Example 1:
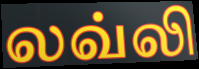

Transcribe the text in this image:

லவ்லி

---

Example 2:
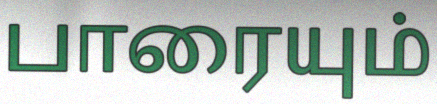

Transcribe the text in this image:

பாரையும்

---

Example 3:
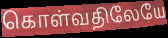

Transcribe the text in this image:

கொள்வதிலேயே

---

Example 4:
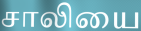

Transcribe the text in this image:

சாலியை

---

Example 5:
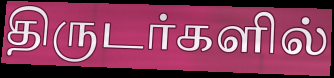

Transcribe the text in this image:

திருடர்களில்